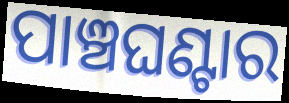
ପାଞ୍ଚଘଣ୍ଟାର